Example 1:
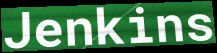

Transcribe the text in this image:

Jenkins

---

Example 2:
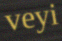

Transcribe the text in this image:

veyi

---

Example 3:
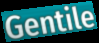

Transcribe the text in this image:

Gentile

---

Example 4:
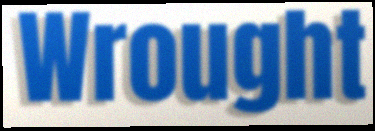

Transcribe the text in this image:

Wrought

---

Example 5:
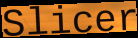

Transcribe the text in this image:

Slicer